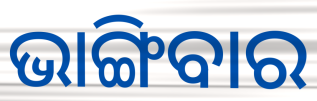
ଭାଙ୍ଗିବାର